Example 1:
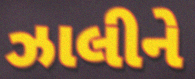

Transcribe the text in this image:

ઝાલીને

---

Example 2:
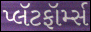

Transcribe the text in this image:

પ્લૅટફૉર્મ્સ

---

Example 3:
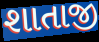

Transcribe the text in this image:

શાતાજી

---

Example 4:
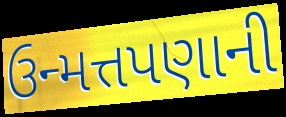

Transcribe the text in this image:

ઉન્મત્તપણાની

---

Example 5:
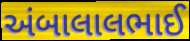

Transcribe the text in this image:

અંબાલાલભાઈ